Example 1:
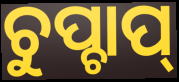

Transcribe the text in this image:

ଚୁପ୍ଚାପ୍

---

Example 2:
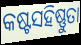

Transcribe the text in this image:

କଷ୍ଟସହିଷ୍ଣୁତା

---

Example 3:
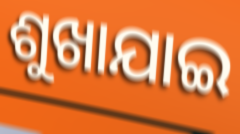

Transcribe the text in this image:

ଶୁଖାଯାଇ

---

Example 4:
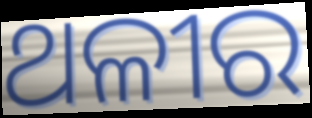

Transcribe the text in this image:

ଥଳୀର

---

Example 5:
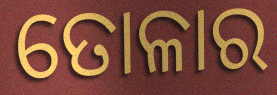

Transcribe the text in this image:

ତୋଳାର